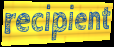
recipient